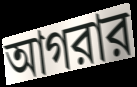
আগরার